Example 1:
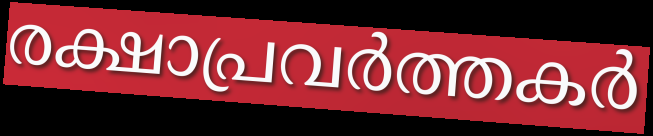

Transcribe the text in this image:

രക്ഷാപ്രവർത്തകർ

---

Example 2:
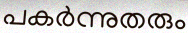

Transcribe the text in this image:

പകർന്നുതരും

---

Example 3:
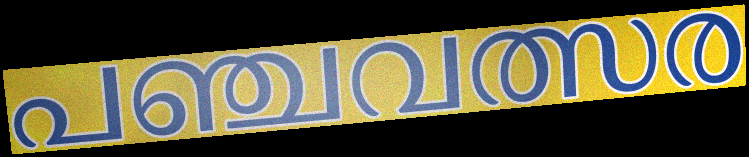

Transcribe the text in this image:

പഞ്ചവത്സര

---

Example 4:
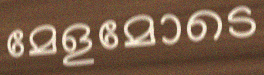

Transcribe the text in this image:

മേളമോടെ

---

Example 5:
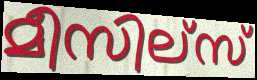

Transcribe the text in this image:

മീസില്സ്